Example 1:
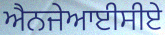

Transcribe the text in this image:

ਐਨਜੇਆਈਸੀਏ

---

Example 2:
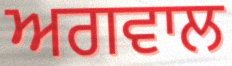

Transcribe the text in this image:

ਅਗਵਾਲ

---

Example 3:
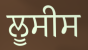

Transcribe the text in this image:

ਲੂਸੀਸ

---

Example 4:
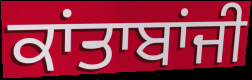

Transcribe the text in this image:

ਕਾਂਤਾਬਾਂਜੀ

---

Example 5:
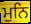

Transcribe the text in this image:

ਮੁਨਿ